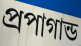
প্রপাগান্ড